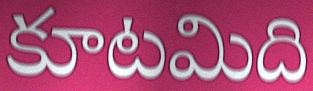
కూటమిది